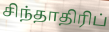
சிந்தாதிரிப்